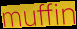
muffin